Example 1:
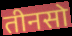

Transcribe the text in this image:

तीनसो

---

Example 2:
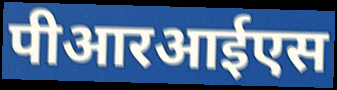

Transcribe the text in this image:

पीआरआईएस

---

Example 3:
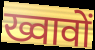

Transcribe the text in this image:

ख्वावों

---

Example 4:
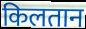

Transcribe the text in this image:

किलतान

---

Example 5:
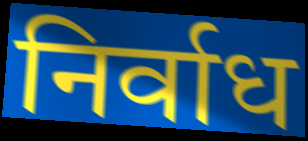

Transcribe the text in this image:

निर्वाध